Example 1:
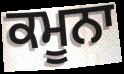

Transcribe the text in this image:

ਕਮੂਨਾ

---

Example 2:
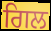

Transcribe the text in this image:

ਗਿਲ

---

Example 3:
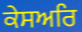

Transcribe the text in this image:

ਕੇਸਅਰਿ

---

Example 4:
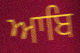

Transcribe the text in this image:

ਆਬਿ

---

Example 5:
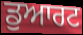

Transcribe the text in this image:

ਡੁਆਰਟ